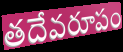
తదేవరూపం